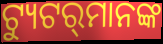
ଟ୍ୟୁଟର୍‍ମାନଙ୍କ